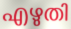
എഴുതി